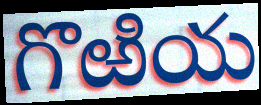
గొఱియ